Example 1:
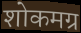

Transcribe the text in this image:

शोकमग्र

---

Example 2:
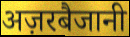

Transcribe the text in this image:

अज़रबैजानी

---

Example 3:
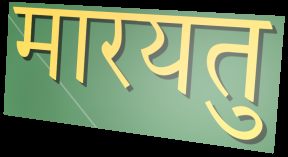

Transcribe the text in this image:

मारयतु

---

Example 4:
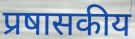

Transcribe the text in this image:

प्रषासकीय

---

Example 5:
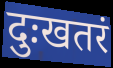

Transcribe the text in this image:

दुःखतरं